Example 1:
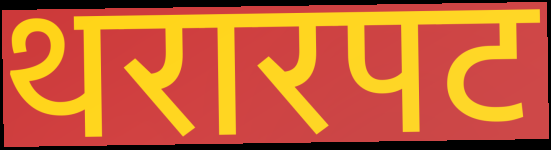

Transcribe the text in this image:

थरारपट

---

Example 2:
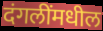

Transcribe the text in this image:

दंगलींमधील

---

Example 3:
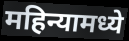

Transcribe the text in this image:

महिन्यामध्ये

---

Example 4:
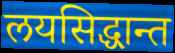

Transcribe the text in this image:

लयसिद्धान्त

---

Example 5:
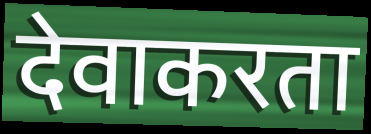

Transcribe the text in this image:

देवाकरता